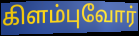
கிளம்புவோர்